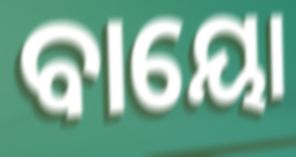
ବାୟୋ